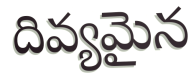
దివ్యమైన